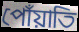
পোঁয়াতি